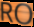
RO